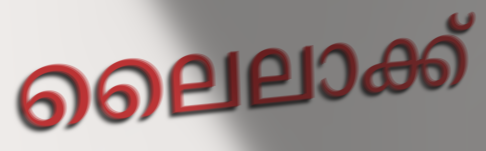
ലൈലാക്ക്